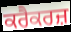
ਕਰੈਕਰਜ਼